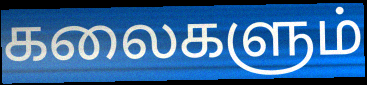
கலைகளும்